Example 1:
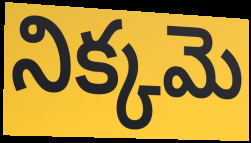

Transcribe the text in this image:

నిక్కమె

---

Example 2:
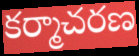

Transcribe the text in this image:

కర్మాచరణ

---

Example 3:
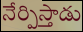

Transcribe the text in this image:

నేర్పిస్తాడు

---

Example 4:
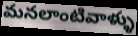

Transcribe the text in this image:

మనలాంటివాళ్ళు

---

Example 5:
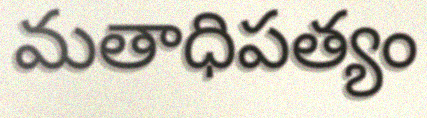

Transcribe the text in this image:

మతాధిపత్యం